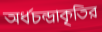
অর্ধচন্দ্রাকৃতির